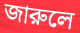
জারুলে